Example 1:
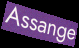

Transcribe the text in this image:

Assange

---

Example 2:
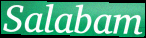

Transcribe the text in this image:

Salabam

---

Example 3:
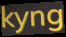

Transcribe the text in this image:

kyng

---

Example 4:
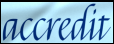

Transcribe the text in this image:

accredit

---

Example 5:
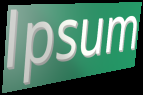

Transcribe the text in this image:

Ipsum